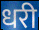
धरी